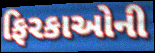
ફિરકાઓની